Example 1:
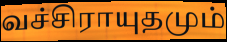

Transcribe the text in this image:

வச்சிராயுதமும்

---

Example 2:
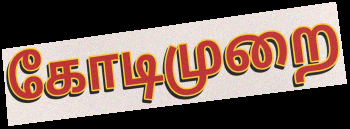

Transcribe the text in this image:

கோடிமுறை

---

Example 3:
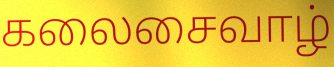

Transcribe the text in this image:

கலைசைவாழ்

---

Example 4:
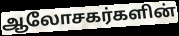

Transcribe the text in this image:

ஆலோசகர்களின்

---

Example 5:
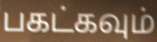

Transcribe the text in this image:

பகட்கவும்